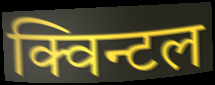
क्विन्टल